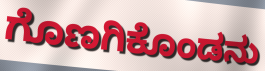
ಗೊಣಗಿಕೊಂಡನು